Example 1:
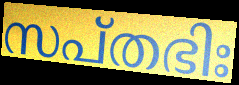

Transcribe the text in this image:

സപ്തഭിഃ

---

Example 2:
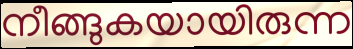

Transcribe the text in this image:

നീങ്ങുകയായിരുന്ന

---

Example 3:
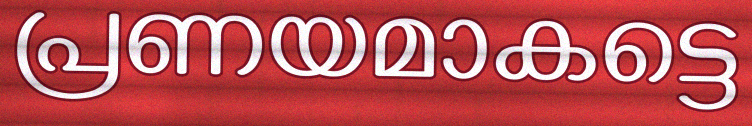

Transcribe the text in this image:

പ്രണയമാകട്ടെ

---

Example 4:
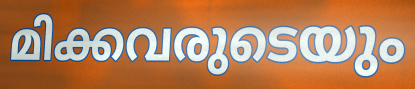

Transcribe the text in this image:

മിക്കവരുടെയും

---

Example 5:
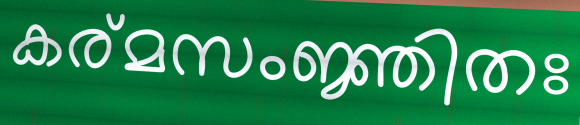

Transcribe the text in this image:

കര്മസംജ്ഞിതഃ